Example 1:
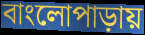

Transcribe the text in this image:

বাংলোপাড়ায়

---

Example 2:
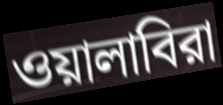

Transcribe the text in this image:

ওয়ালাবিরা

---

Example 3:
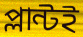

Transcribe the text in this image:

প্লান্টই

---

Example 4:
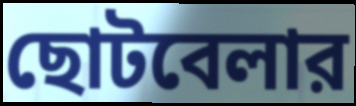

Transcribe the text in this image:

ছোটবেলার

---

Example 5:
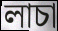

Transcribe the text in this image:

লাচা